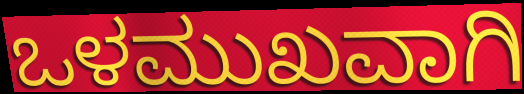
ಒಳಮುಖವಾಗಿ